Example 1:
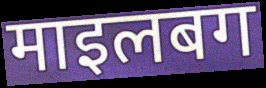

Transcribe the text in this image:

माइलबग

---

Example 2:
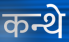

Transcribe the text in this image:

कन्थे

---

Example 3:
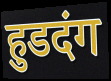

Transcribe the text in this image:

हुडदंग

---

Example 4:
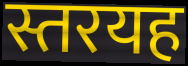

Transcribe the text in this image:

स्तरयह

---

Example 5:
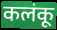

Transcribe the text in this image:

कलंकू